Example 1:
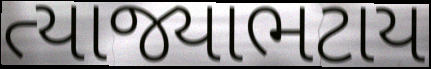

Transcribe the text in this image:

ત્યાજ્યાભટાય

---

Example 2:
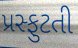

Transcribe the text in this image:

પ્રસ્ફુટતી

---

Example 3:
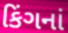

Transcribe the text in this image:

કિંગનાં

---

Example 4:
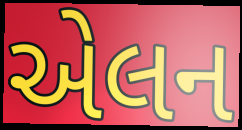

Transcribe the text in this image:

એલન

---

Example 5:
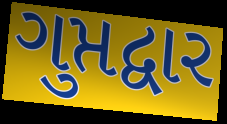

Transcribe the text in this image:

ગુપ્તદ્વાર